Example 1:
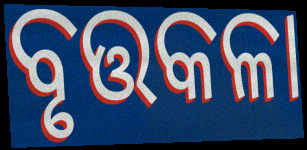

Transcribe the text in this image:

ବୃତ୍ତକଳା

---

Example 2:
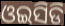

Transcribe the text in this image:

ଓଇସିଡି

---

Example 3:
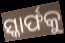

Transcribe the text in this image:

ସ୍କାର୍ଫକୁ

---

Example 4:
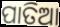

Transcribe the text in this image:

ପାତିଆ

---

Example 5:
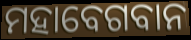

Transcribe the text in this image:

ମହାବେଗବାନ